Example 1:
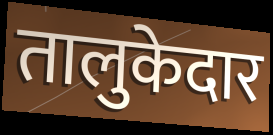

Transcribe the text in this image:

तालुकेदार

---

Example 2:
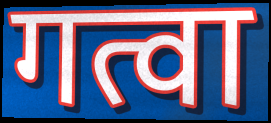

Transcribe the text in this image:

गत्वा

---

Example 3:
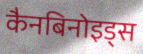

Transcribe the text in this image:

कैनबिनोइड्स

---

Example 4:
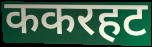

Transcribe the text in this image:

ककरहट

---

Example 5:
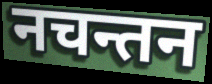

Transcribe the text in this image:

नचन्तन